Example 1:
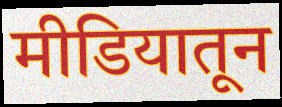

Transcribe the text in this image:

मीडियातून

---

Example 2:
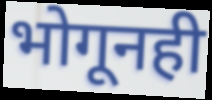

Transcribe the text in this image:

भोगूनही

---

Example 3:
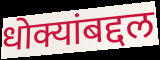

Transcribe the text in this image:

धोक्यांबद्दल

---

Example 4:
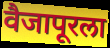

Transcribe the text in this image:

वैजापूरला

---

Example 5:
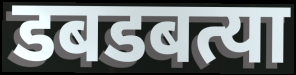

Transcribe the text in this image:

डबडबत्या